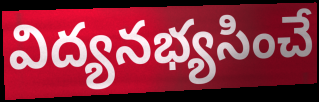
విద్యనభ్యసించే